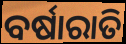
ବର୍ଷାରାତି